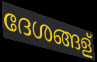
ദേശങ്ങള്